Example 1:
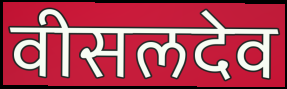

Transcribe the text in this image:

वीसलदेव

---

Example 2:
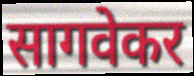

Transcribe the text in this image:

सागवेकर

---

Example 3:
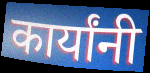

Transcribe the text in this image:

कार्यांनी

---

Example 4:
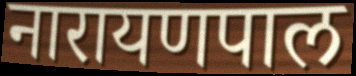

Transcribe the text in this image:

नारायणपाल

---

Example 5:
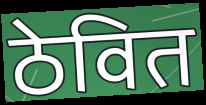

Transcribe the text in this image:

ठेवित